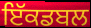
ਇੱਕਡਬਲ